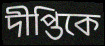
দীপ্তিকে